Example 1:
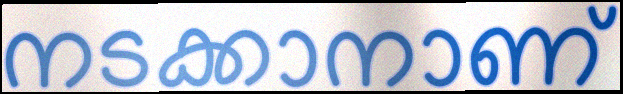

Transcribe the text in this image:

നടക്കാനാണ്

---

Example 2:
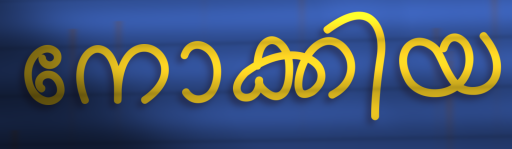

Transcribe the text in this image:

നോക്കിയ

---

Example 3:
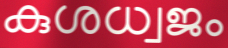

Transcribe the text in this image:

കുശധ്വജം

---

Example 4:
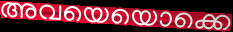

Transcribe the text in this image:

അവയെയൊക്കെ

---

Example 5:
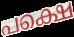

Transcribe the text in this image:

പക്ഷെ